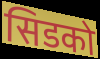
सिडको